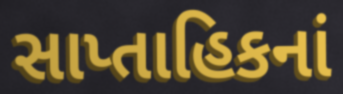
સાપ્તાહિકનાં